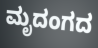
ಮೃದಂಗದ